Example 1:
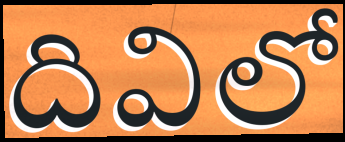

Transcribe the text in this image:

దివిలో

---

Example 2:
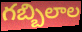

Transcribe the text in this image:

గబ్బిలాల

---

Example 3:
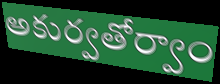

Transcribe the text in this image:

అకుర్వతోర్వాం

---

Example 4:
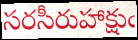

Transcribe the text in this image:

సరసీరుహాక్షుఁ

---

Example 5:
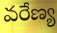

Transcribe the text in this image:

వరేణ్య